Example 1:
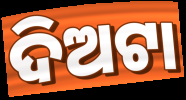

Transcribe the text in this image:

ଦିଅଟା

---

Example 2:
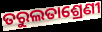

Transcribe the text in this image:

ତରୁଲତାଶ୍ରେଣୀ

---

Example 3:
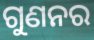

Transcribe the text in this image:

ଗୁଣନର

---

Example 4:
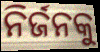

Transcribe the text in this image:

ନିର୍ଜନକୁ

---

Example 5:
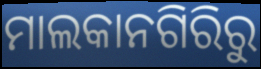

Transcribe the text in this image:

ମାଲକାନଗିରିରୁ